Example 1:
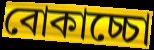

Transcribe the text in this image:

বোকাচ্চো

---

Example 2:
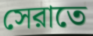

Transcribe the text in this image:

সেরাতে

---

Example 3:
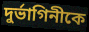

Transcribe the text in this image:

দুর্ভাগিনীকে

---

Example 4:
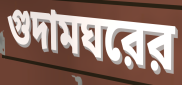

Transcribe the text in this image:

গুদামঘরের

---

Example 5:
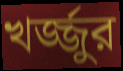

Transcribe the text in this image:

খর্জ্জুর